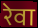
रेवा